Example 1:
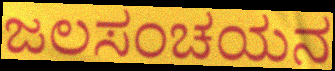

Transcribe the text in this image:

ಜಲಸಂಚಯನ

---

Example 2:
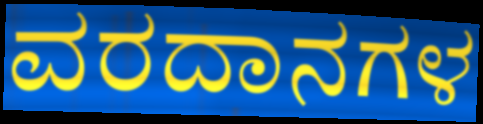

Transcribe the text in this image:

ವರದಾನಗಳ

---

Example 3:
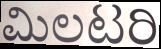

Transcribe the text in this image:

ಮಿಲಟರಿ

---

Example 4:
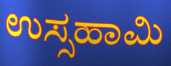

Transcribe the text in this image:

ಉಸ್ಸಹಾಮಿ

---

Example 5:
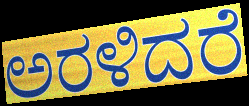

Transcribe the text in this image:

ಅರಳಿದರೆ